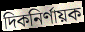
দিকনির্ণায়ক